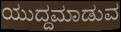
ಯುದ್ದಮಾಡುವ